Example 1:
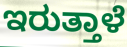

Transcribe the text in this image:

ಇರುತ್ತಾಳೆ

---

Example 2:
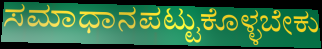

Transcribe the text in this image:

ಸಮಾಧಾನಪಟ್ಟುಕೊಳ್ಳಬೇಕು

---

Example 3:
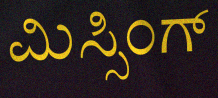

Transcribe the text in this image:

ಮಿಸ್ಸಿಂಗ್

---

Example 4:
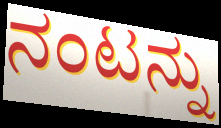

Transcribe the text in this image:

ನಂಟನ್ನು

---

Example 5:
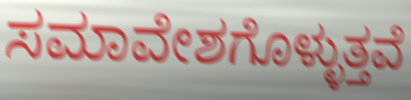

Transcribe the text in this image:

ಸಮಾವೇಶಗೊಳ್ಳುತ್ತವೆ